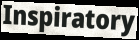
Inspiratory